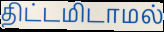
திட்டமிடாமல்